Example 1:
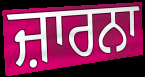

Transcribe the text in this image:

ਜ਼ਾਰਨਾ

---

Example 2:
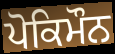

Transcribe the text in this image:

ਪੋਕਿਮੌਨ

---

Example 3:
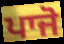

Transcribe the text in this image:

ਪਾਜੋ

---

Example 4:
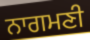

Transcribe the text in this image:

ਨਾਗਮਣੀ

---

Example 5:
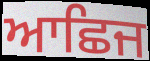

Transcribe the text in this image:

ਆਛਿਜ